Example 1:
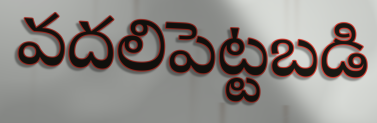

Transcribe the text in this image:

వదలిపెట్టబడి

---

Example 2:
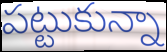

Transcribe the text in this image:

పట్టుకున్నా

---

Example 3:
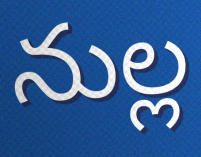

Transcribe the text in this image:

నుల్ల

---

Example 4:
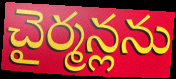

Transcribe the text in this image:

చైర్మన్లను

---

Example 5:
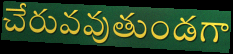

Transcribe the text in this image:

చేరువవుతుండగా